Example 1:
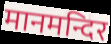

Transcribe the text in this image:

मानमन्दिर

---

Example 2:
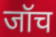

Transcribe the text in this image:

जॉच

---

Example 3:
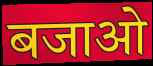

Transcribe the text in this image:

बजाओ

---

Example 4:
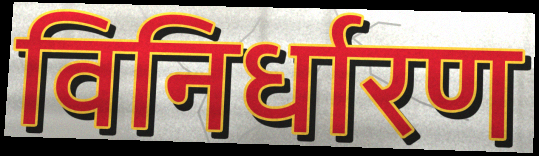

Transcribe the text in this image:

विनिर्धारण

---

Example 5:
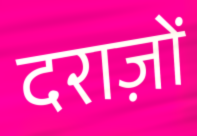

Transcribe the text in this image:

दराज़ों